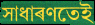
সাধাৰণতেই